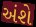
અંશે